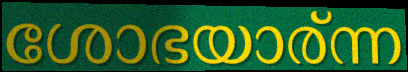
ശോഭയാര്ന്ന